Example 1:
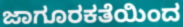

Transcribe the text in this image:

ಜಾಗೂರಕತೆಯಿಂದ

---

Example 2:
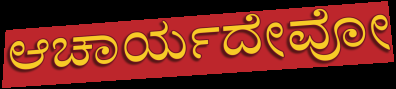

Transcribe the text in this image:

ಆಚಾರ್ಯದೇವೋ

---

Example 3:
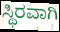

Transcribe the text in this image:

ಸ್ಥಿರವಾಗಿ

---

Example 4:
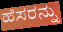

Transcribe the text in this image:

ಹೆಸರನ್ನು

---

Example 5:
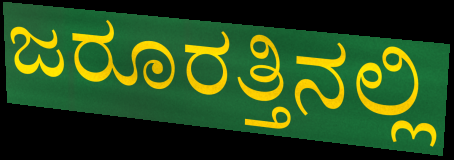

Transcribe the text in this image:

ಜರೂರತ್ತಿನಲ್ಲಿ